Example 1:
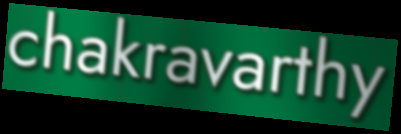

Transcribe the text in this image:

chakravarthy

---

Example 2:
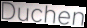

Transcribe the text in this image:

Duchen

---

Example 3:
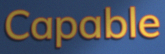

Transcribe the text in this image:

Capable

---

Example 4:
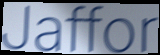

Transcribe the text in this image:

Jaffor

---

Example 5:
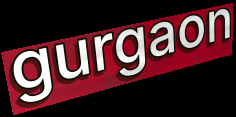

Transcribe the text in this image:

gurgaon